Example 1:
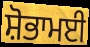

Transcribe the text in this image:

ਸ਼ੋਭਾਮਈ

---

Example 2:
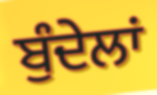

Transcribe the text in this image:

ਬੁੰਦੇਲਾਂ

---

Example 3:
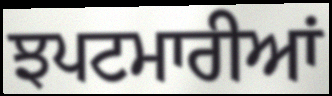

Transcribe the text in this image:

ਝਪਟਮਾਰੀਆਂ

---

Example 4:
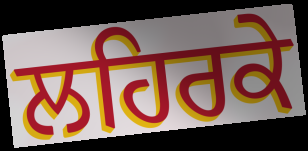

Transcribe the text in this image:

ਲਹਿਰਕੇ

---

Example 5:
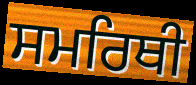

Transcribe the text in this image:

ਸਮਰਿਥੀ